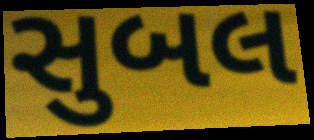
સુબલ